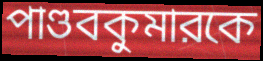
পাণ্ডবকুমারকে